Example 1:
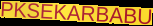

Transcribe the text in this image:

PKSEKARBABU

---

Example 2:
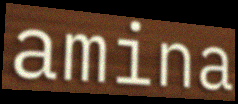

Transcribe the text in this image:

amina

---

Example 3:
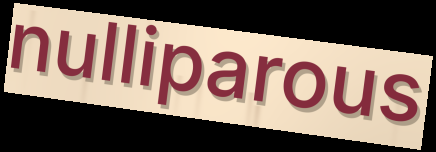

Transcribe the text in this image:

nulliparous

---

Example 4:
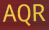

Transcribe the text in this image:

AQR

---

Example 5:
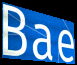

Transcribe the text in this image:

Bae